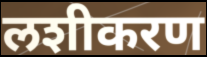
लशीकरण